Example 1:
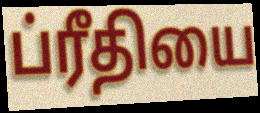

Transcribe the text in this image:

ப்ரீதியை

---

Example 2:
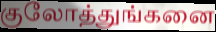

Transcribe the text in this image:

குலோத்துங்கனை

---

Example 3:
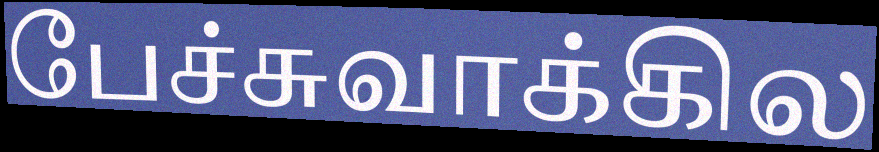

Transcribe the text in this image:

பேச்சுவாக்கில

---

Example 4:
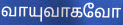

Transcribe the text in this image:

வாயுவாகவோ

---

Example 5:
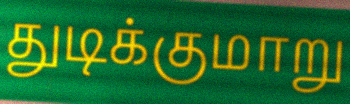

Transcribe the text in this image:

துடிக்குமாறு